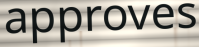
approves